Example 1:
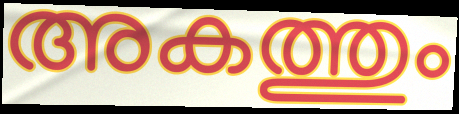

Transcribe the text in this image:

അകത്തും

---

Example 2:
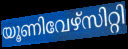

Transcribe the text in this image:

യൂണിവേഴ്സിറ്റി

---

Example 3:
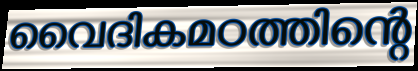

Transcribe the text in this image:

വൈദികമഠത്തിന്റെ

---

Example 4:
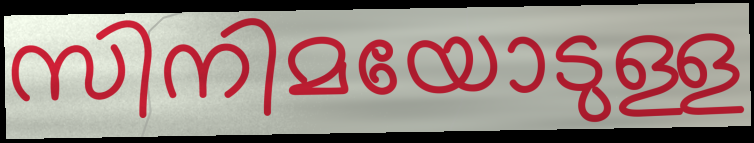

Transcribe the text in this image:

സിനിമയോടുള്ള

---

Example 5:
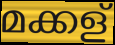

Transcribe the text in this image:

മക്കള്